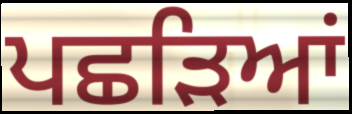
ਪਛੜਿਆਂ